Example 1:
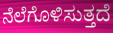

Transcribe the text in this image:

ನೆಲೆಗೊಳಿಸುತ್ತದೆ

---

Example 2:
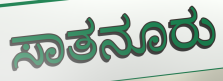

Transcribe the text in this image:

ಸಾತನೂರು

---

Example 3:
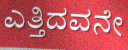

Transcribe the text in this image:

ಎತ್ತಿದವನೇ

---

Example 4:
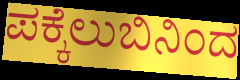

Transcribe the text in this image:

ಪಕ್ಕೆಲುಬಿನಿಂದ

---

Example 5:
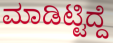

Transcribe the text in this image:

ಮಾಡಿಟ್ಟಿದ್ದೆ